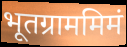
भूतग्राममिमं